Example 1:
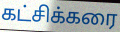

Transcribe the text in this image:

கட்சிக்கரை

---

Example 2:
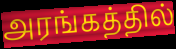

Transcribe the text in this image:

அரங்கத்தில்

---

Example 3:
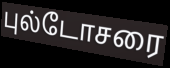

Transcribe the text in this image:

புல்டோசரை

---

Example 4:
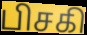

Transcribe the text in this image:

பிசகி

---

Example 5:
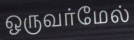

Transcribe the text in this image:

ஒருவர்மேல்